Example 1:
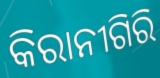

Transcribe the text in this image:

କିରାନୀଗିରି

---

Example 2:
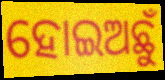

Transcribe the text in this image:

ହୋଇଅଛୁଁ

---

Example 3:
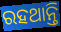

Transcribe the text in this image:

ରହଥାନ୍ତି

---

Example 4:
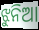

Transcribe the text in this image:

ଝୁନିଆ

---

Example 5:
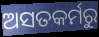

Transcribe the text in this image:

ଅସତକର୍ମରୁ